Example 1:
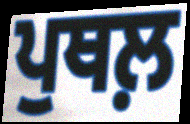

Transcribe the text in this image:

ਪੁਥਲ਼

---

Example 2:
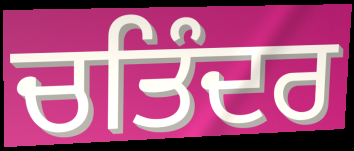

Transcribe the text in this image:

ਚਤਿੰਦਰ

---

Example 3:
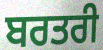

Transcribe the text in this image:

ਬਰਤਰੀ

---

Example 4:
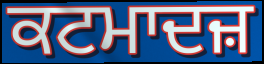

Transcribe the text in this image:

ਕਟਮਾਦਜ਼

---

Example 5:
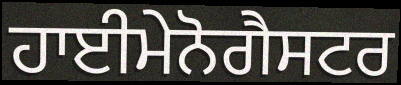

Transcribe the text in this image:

ਹਾਈਮੇਨੋਗੈਸਟਰ